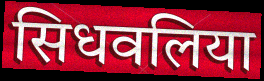
सिधवलिया